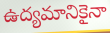
ఉద్యమానికైనా